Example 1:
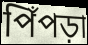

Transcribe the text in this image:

পিঁপড়া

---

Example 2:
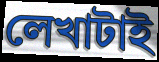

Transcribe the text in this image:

লেখাটাই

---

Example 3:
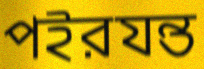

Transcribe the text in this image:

পইরযন্ত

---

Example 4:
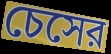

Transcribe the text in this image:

চেসের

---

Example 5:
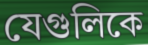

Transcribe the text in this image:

যেগুলিকে